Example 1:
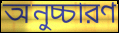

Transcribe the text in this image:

অনুচ্চারণ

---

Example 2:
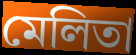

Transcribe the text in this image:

মেলিতা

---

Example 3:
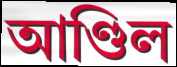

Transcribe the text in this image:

আণ্ডিল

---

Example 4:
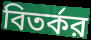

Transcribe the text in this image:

বিতর্কর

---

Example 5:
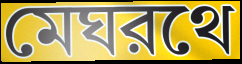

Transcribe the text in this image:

মেঘরথে